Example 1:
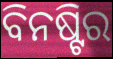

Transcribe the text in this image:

ବିନଷ୍ଟିର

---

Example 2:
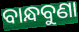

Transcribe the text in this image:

ବାନ୍ଧବୁଣା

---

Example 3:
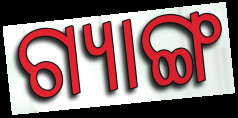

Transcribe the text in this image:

ଗ୍ୟାଙ୍ଗ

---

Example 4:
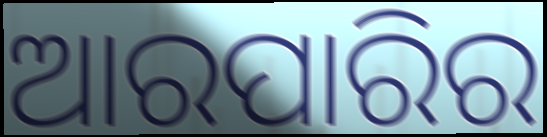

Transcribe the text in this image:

ଆରପାରିର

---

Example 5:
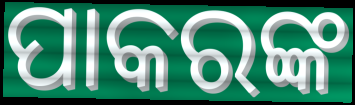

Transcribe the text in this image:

ପାକରଙ୍କ